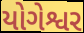
યોગેશ્વર